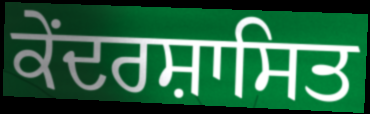
ਕੇਂਦਰਸ਼ਾਸਿਤ